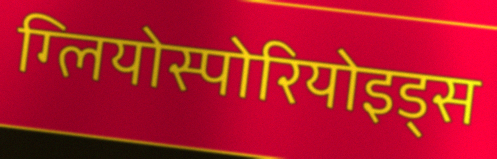
ग्लियोस्पोरियोइड्स